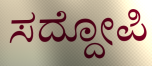
ಸದ್ದೋಪಿ